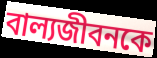
বাল্যজীবনকে